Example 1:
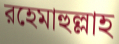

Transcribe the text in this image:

রহেমাহুল্লাহ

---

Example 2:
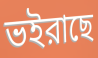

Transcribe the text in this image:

ভইরাছে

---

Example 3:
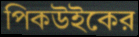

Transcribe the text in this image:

পিকউইকের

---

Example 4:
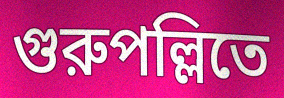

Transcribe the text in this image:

গুরুপল্লিতে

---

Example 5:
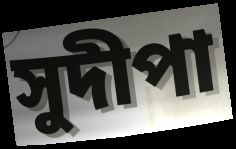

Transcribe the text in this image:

সুদীপা